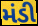
મંડી